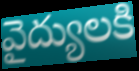
వైద్యులకి